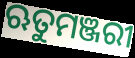
ଋତୁମଞ୍ଜରୀ